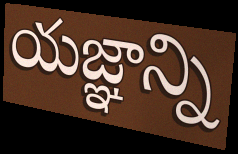
యజ్ఞాన్ని